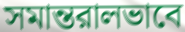
সমান্তরালভাবে